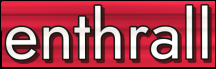
enthrall